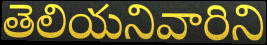
తెలియనివారిని